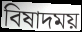
বিষাদময়